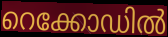
റെക്കോഡിൽ